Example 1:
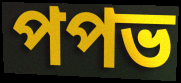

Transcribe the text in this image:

পপভ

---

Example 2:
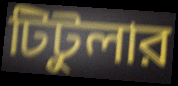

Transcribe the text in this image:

টিটুলার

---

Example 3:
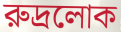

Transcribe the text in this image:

রুদ্রলোক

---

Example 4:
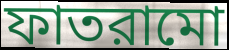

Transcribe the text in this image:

ফাতরামো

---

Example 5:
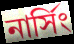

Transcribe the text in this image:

নার্সিং